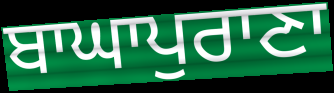
ਬਾਘਾਪੁਰਾਣਾ